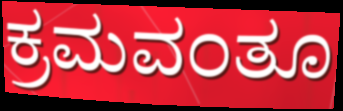
ಕ್ರಮವಂತೂ